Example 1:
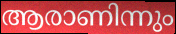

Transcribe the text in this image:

ആരാണിന്നും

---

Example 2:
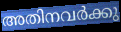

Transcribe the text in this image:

അതിനവർക്കു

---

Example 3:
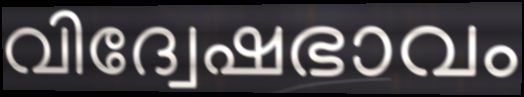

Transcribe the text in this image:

വിദ്വേഷഭാവം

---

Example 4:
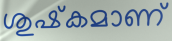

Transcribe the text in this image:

ശുഷ്‌കമാണ്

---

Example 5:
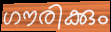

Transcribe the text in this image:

ഗൗരിക്കും